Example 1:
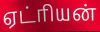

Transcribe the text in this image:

ஏட்ரியன்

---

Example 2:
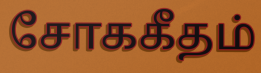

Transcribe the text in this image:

சோககீதம்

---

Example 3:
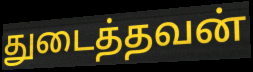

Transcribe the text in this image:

துடைத்தவன்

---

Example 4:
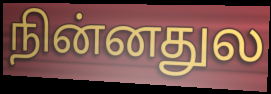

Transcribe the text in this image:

நின்னதுல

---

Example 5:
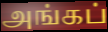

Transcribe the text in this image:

அங்கப்